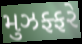
મુઝફ્ફરે